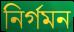
নিৰ্গমন